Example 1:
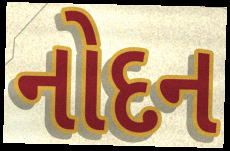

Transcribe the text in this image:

નોદન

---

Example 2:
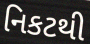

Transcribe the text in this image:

નિકટથી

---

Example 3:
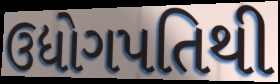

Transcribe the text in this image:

ઉદ્યોગપતિથી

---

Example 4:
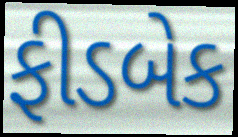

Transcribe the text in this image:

ફીડબેક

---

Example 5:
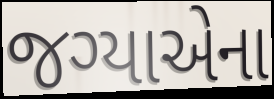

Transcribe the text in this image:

જગ્યાએના